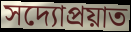
সদ্যোপ্রয়াত